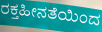
ರಕ್ತಹೀನತೆಯಿಂದ